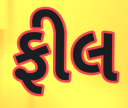
ફીલ